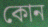
কোন